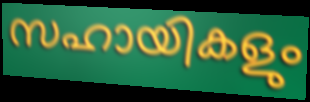
സഹായികളും